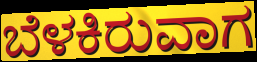
ಬೆಳಕಿರುವಾಗ